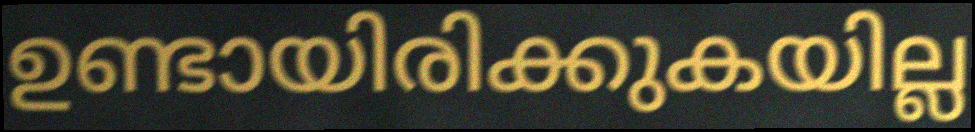
ഉണ്ടായിരിക്കുകയില്ല